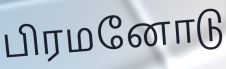
பிரமனோடு